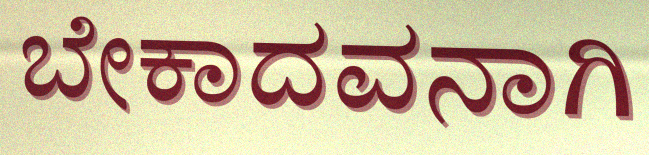
ಬೇಕಾದವನಾಗಿ